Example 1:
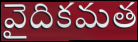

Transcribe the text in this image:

వైదికమత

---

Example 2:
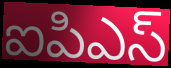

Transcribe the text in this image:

ఐపిఎస్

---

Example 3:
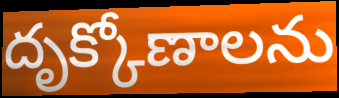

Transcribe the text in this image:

దృక్కోణాలను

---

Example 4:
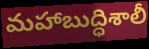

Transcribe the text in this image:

మహాబుద్ధిశాలీ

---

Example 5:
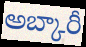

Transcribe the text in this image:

అబ్కారీ